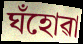
ঘঁহোৱা